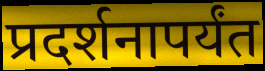
प्रदर्शनापर्यंत